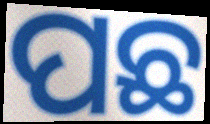
ପଛ